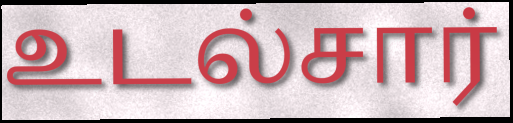
உடல்சார்